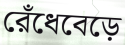
রেঁধেবেড়ে